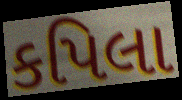
કપિલા